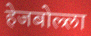
हेजबोल्ला